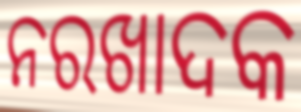
ନରଖାଦକ